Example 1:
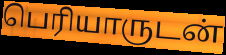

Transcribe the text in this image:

பெரியாருடன்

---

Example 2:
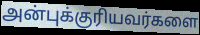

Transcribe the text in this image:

அன்புக்குரியவர்களை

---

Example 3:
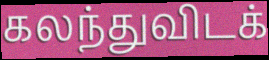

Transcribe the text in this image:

கலந்துவிடக்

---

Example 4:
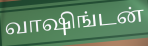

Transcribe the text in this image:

வாஷிங்டன்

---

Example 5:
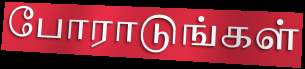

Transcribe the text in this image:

போராடுங்கள்